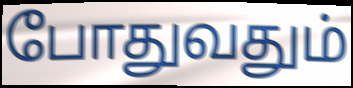
போதுவதும்